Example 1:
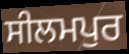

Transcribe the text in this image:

ਸੀਲਮਪੁਰ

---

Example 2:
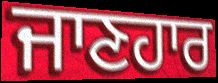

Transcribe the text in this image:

ਜਾਣਹਾਰ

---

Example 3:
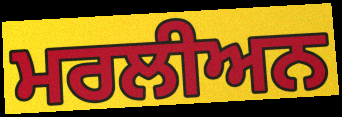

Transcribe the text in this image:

ਮਰਲੀਅਨ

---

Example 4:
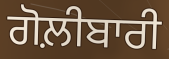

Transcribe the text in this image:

ਗੋਲ਼ੀਬਾਰੀ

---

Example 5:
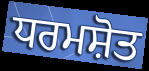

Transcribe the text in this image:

ਧਰਮਸ਼ੋਤ